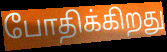
போதிக்கிறது